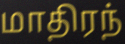
மாதிரந்